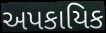
અપકાયિક